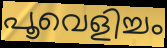
പൂവെളിച്ചം